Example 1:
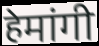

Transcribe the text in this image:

हेमांगी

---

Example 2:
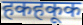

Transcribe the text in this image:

हकहकूक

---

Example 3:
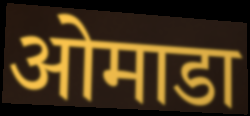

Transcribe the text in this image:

ओमाडा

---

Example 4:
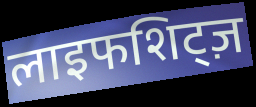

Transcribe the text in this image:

लाइफशिट्ज़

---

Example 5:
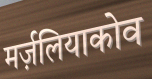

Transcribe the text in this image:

मर्ज़लियाकोव